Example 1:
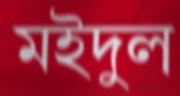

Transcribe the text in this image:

মইদুল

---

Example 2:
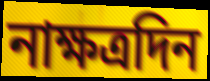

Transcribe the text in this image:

নাক্ষত্রদিন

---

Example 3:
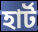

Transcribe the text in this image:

হার্ট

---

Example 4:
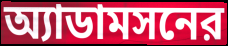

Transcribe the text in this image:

অ্যাডামসনের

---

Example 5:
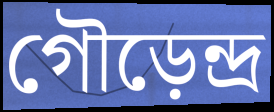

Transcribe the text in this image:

গৌড়েন্দ্র